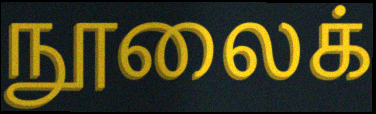
நூலைக்